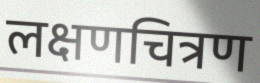
लक्षणचित्रण